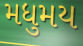
મધુમય